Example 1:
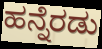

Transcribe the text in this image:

ಹನ್ನೆರಡು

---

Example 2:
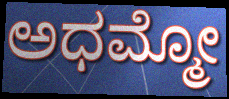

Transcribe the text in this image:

ಅಧಮ್ಮೋ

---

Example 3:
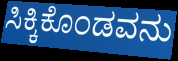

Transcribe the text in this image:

ಸಿಕ್ಕಿಕೊಂಡವನು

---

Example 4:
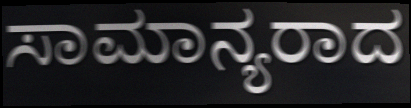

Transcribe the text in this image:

ಸಾಮಾನ್ಯರಾದ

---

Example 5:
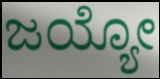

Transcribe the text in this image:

ಜಯ್ಯೋ